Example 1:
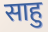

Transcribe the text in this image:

साहु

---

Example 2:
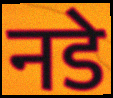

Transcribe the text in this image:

नडे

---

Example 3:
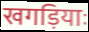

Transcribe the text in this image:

खगड़ियाः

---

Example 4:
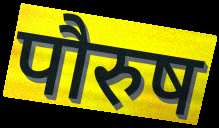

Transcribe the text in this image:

पौरुष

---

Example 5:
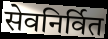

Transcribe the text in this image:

सेवनिर्वित